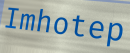
Imhotep